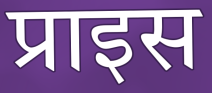
प्राइस